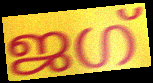
ജഗ്